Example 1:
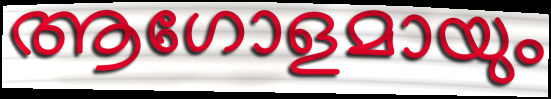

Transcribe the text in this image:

ആഗോളമായും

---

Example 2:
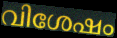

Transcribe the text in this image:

വിശേഷം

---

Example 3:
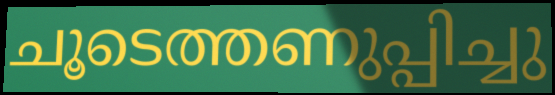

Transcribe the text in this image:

ചൂടെത്തണുപ്പിച്ചു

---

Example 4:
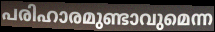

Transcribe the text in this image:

പരിഹാരമുണ്ടാവുമെന്ന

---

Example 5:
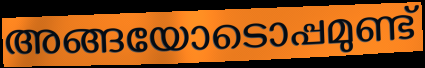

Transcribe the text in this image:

അങ്ങയോടൊപ്പമുണ്ട്